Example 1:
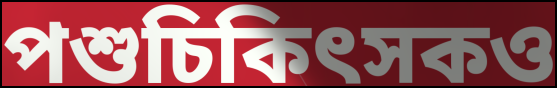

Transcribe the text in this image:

পশুচিকিৎসকও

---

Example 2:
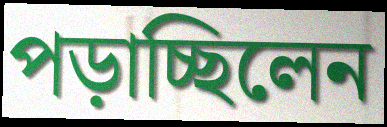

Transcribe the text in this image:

পড়াচ্ছিলেন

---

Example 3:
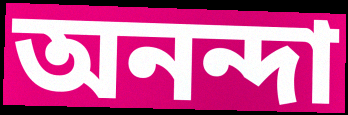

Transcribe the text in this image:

অনন্দা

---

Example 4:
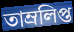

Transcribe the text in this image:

তাম্রলিপ্ত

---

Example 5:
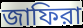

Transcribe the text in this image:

জাফিরা